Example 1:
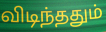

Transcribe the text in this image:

விடிந்ததும்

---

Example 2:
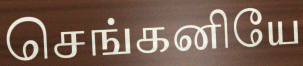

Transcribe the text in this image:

செங்கனியே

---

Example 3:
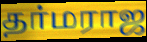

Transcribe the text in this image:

தர்மராஜ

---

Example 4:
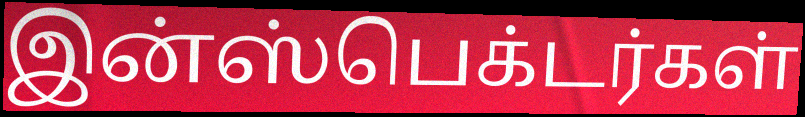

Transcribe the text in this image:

இன்ஸ்பெக்டர்கள்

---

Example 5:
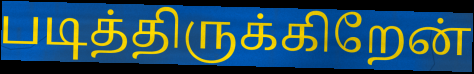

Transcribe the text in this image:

படித்திருக்கிறேன்